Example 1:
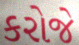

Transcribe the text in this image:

કરોજે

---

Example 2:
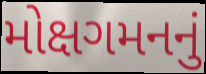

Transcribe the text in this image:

મોક્ષગમનનું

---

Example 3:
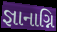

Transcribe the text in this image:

જ્ઞાનાગ્નિ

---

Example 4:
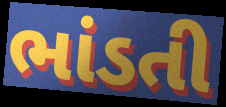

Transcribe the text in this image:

ભાંડતી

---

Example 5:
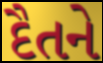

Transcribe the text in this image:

દૈતને